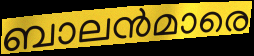
ബാലൻമാരെ